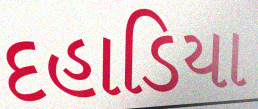
દહાડિયા